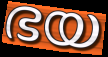
ഭയ